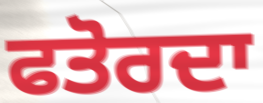
ਫਤੋਰਦਾ